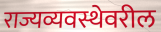
राज्यव्यवस्थेवरील